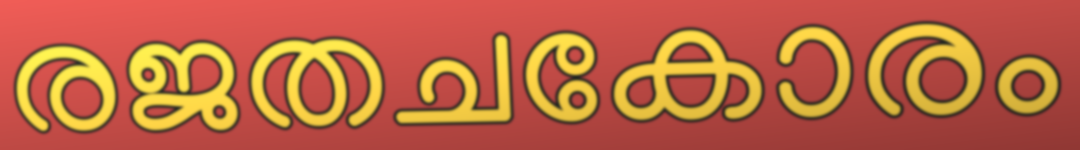
രജതചകോരം